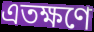
এতক্ষণে